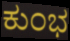
ಕುಂಭ